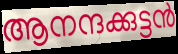
ആനന്ദക്കുട്ടൻ